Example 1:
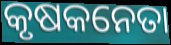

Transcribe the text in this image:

କୃଷକନେତା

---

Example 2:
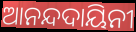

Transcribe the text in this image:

ଆନନ୍ଦଦାୟିନୀ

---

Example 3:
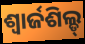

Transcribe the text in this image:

ଶ୍ୱାର୍ଜଶିଲ୍ଡ୍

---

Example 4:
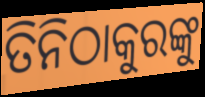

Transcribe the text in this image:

ତିନିଠାକୁରଙ୍କୁ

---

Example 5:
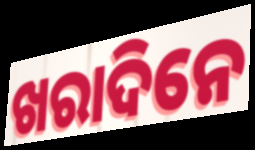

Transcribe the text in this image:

ଖରାଦିନେ